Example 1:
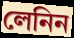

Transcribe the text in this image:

লেনিন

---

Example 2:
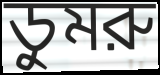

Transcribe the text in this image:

ডুমরু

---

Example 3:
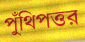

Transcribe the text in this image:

পুঁথিপত্তর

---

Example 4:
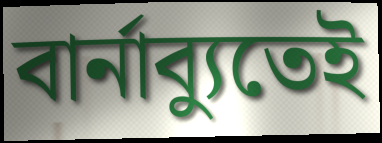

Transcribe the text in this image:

বার্নাব্যুতেই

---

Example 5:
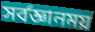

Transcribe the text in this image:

সর্বজ্ঞানময়